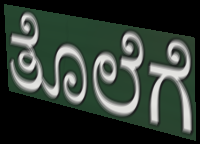
ತೊಲೆಗೆ